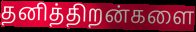
தனித்திறன்களை